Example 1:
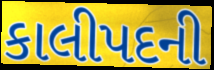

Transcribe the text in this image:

કાલીપદની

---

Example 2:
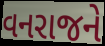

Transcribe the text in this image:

વનરાજને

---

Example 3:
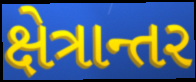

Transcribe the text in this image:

ક્ષેત્રાન્તર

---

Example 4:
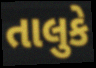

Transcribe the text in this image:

તાલુકે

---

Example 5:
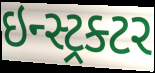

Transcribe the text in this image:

ઇન્સ્ટ્રક્ટર